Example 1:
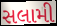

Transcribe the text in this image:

સલામી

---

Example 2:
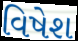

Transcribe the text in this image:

વિષેશ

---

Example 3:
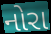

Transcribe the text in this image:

નોરા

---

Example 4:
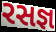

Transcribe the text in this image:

રસજ્ઞ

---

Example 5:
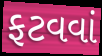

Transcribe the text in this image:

ફટવવાં